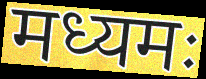
मध्यमः